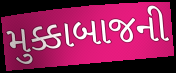
મુક્કાબાજની